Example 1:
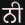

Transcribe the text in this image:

ਨੀ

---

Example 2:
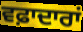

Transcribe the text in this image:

ਵਫ਼ਾਦਾਰਾਂ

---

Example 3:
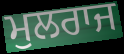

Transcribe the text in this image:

ਮੁਲਰਾਜ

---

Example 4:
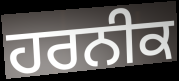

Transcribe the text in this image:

ਹਰਨੀਕ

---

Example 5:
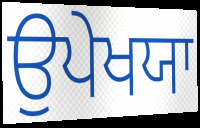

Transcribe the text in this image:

ਉਪੇਖਯਾ